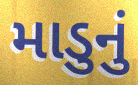
માડુનું